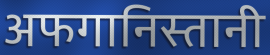
अफगानिस्तानी